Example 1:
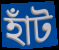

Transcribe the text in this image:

হাঁট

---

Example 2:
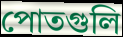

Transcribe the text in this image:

পোতগুলি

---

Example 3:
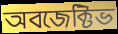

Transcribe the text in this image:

অবজেক্টিভ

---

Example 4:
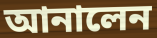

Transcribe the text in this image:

আনালেন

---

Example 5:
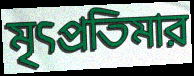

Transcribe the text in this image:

মৃৎপ্রতিমার